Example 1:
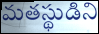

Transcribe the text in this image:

మతస్థుడిని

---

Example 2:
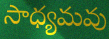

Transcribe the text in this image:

సాధ్యమవు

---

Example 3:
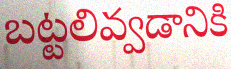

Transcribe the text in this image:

బట్టలివ్వడానికి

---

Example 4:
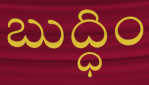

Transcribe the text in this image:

బుద్ధిం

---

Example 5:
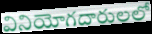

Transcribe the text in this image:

వినియోగదారులలో